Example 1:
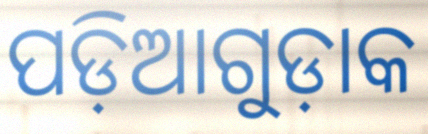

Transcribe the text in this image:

ପଡ଼ିଆଗୁଡ଼ାକ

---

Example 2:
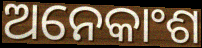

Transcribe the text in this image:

ଅନେକାଂଶ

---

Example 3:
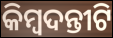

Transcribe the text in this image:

କିମ୍ୱଦନ୍ତୀଟି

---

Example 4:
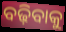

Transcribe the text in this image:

ବଢ଼ିବାକୁ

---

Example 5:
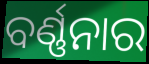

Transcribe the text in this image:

ବର୍ଣ୍ଣନାର